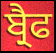
ਬ੍ਰੈਫ